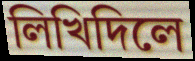
লিখিদিলে